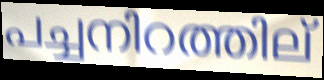
പച്ചനിറത്തില്